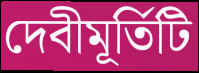
দেবীমূর্তিটি